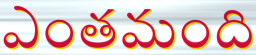
ఎంతమంది